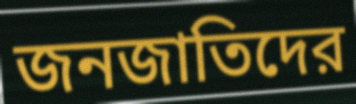
জনজাতিদের